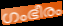
ഗംഭീരം